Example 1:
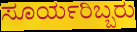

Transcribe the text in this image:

ಸೂರ್ಯರಿಬ್ಬರು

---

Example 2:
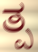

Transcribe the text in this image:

ತ್ಪ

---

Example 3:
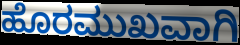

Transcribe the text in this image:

ಹೊರಮುಖವಾಗಿ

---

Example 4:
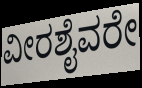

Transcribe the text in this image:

ವೀರಶೈವರೇ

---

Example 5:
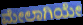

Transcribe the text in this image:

ಮೇಲಾಗಿಯೇ